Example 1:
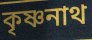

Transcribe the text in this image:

কৃষ্ণনাথ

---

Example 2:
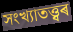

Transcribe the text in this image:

সংখ্যাতত্ত্বৰ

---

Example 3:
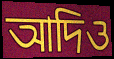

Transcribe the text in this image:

আদিও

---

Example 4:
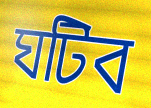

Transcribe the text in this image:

ঘটিব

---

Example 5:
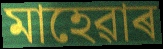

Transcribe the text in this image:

মাহেৱাৰ